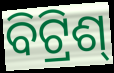
ବିଟ୍ରିଶ୍